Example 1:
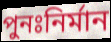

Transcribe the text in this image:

পুনঃনির্মান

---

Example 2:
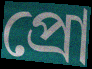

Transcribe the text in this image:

প্রো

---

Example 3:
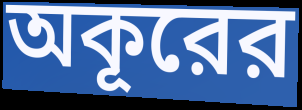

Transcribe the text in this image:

অকূরের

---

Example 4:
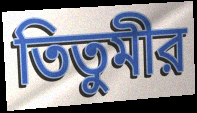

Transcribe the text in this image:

তিতুমীর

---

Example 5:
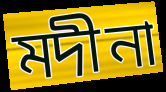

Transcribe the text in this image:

মদীনা